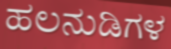
ಹಲನುಡಿಗಳ